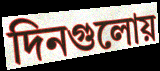
দিনগুলোয়